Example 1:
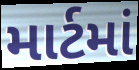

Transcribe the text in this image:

માર્ટમાં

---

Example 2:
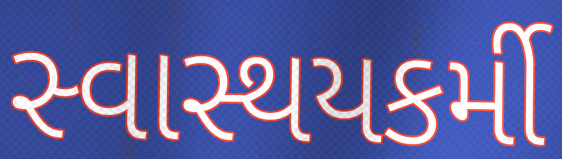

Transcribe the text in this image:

સ્વાસ્થયકર્મી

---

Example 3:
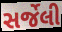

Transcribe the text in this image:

સર્જેલી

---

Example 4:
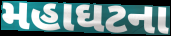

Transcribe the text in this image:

મહાઘટના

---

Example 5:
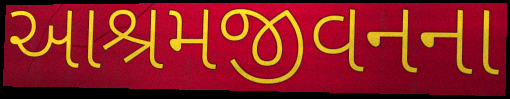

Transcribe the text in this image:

આશ્રમજીવનના